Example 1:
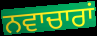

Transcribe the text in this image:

ਨਵਾਚਾਰਾਂ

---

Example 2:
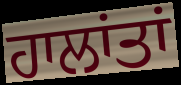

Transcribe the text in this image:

ਹਾਲਾਂਤਾਂ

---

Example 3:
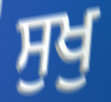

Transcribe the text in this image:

ਸੁਖੁ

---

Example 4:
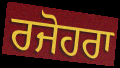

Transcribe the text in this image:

ਰਜੋਹਰਾ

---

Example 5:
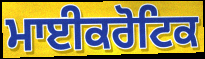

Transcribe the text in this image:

ਮਾਈਕਰੋਟਿਕ